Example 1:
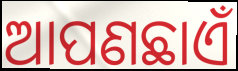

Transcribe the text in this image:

ଆପଣଛାଏଁ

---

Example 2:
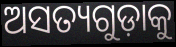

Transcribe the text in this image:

ଅସତ୍ୟଗୁଡ଼ାକୁ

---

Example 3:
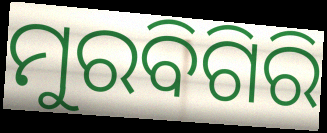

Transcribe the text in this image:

ମୁରବିଗିରି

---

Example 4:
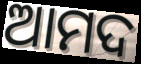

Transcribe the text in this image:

ଆମଦ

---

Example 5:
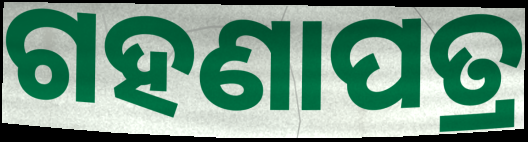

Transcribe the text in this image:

ଗହଣାପତ୍ର